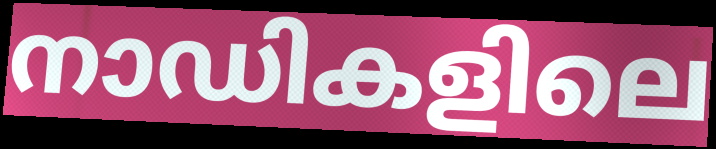
നാഡികളിലെ